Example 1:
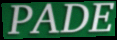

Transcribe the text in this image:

PADE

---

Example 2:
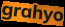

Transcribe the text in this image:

grahyo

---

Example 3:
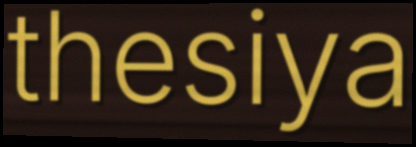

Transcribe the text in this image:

thesiya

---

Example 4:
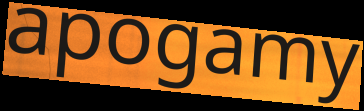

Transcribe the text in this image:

apogamy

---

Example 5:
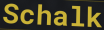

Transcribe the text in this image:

Schalk